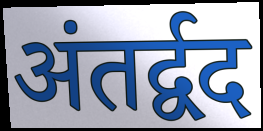
अंतर्द्वद